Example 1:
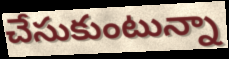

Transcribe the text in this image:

చేసుకుంటున్నా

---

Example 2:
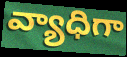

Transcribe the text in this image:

వ్యాధిగా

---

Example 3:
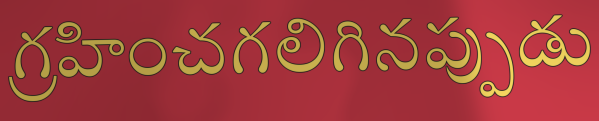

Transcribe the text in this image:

గ్రహించగలిగినప్పుడు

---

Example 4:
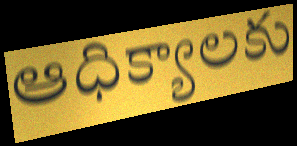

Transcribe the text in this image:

ఆధిక్యాలకు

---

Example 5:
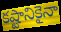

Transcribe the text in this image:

కష్టానికైనా